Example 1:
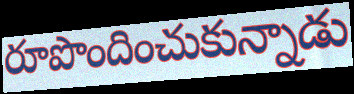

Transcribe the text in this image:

రూపొందించుకున్నాడు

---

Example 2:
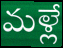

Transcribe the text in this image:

మళ్లే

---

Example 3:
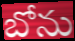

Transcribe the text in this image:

బోను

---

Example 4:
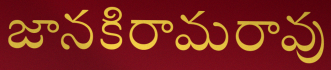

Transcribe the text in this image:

జానకిరామరావు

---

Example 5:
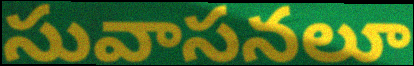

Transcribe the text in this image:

సువాసనలూ